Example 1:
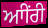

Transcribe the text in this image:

ਆੀਂਰੀ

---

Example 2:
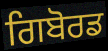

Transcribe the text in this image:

ਗਿਬੋਰਡ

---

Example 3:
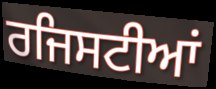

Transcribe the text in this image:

ਰਜਿਸਟੀਆਂ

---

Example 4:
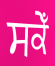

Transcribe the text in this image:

ਸਕੇਁ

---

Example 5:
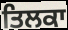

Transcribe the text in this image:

ਤਿਲਕਾ